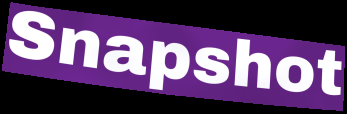
Snapshot